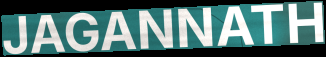
JAGANNATH